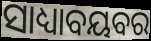
ସାଧ୍ୟାବୟବର